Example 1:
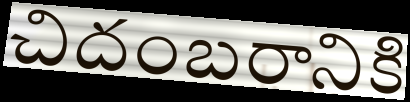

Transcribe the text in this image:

చిదంబరానికి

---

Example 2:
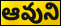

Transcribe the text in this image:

ఆవుని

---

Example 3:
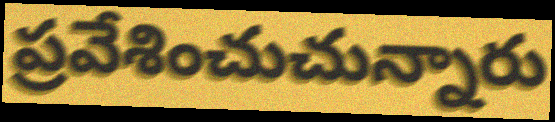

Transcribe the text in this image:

ప్రవేశించుచున్నారు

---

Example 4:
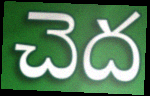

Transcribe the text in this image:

చెద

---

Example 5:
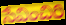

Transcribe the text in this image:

సేవించిరి